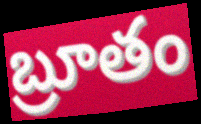
బ్రూతం